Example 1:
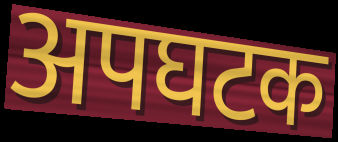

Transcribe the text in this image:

अपघटक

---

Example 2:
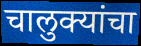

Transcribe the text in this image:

चालुक्यांचा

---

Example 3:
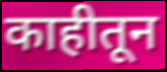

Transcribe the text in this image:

काहीतून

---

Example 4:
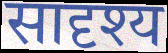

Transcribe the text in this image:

सादृश्य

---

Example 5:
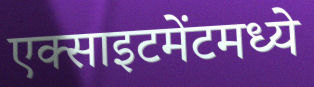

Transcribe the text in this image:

एक्साइटमेंटमध्ये